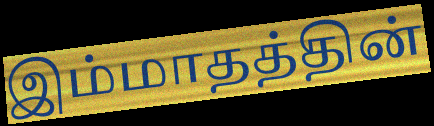
இம்மாதத்தின்